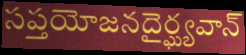
సప్తయోజనదైర్ఘ్యవాన్